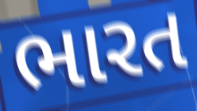
ભારત